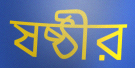
ষষ্ঠীর